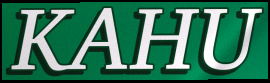
KAHU